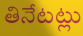
తినేటట్లు